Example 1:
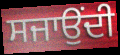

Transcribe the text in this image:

ਸਜਾਉਂਦੀ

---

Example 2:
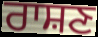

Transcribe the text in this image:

ਰਾਸ਼ਣ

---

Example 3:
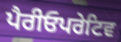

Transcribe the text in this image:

ਪੈਰੀਓਪਰੇਟਿਵ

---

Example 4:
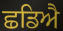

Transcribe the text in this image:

ਛਡਿਐ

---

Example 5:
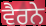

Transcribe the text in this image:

ਵੈਰਨੇ